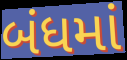
બંધમાં